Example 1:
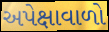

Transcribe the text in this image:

અપેક્ષાવાળો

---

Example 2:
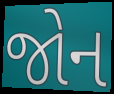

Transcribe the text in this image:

જોન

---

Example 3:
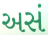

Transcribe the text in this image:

અસં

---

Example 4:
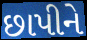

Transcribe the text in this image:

છાપીને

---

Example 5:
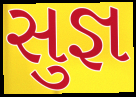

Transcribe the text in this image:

સુજ્ઞ